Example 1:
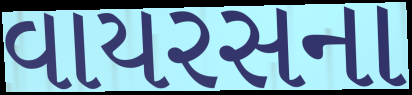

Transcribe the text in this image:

વાયરસના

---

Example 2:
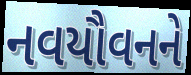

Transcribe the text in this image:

નવયૌવનને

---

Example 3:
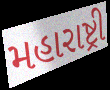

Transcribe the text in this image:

મહારાષ્ટ્રી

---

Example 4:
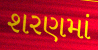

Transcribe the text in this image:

શરણમાં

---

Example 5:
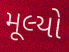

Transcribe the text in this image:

મૂલ્યો